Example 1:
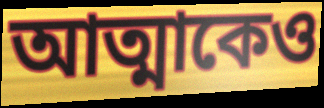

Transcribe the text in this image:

আত্মাকেও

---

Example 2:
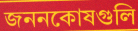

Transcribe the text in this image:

জননকোষগুলি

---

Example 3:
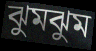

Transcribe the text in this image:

ঝুমঝুম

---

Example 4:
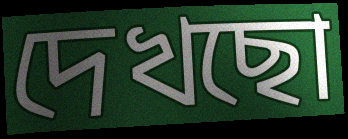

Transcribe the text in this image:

দেখছো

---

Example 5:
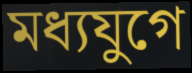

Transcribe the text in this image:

মধ্যযুগে